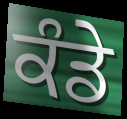
ਕੰਡੇ